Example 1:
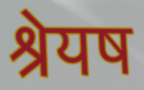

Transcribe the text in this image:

श्रेयष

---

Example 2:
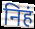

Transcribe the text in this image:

निहं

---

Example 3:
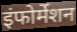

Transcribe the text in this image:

इंफोर्मेशन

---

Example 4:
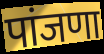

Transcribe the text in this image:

पांजणा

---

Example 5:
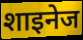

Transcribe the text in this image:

शाइनेज